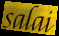
salai